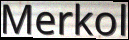
Merkol